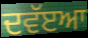
ਦਵੱੲਆ